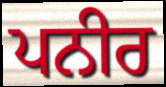
ਪਨੀਰ